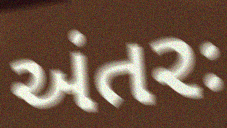
અંતરઃ